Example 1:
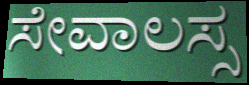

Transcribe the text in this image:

ಸೇವಾಲಸ್ಸ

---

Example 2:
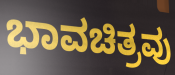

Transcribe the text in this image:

ಭಾವಚಿತ್ರವು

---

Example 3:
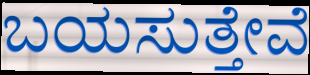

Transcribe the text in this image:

ಬಯಸುತ್ತೇವೆ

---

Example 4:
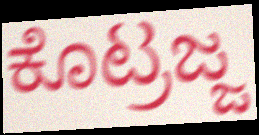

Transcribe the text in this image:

ಕೊಟ್ರಜ್ಜ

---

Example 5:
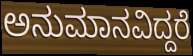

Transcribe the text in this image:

ಅನುಮಾನವಿದ್ದರೆ